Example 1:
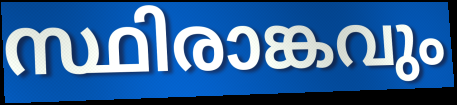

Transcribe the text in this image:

സ്ഥിരാങ്കവും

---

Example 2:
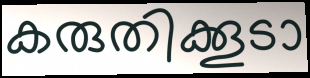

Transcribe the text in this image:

കരുതിക്കൂടാ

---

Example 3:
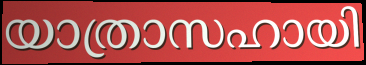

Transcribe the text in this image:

യാത്രാസഹായി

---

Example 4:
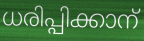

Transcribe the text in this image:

ധരിപ്പിക്കാന്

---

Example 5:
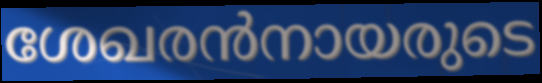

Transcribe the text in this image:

ശേഖരൻനായരുടെ